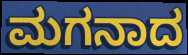
ಮಗನಾದ